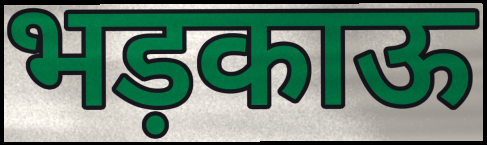
भड़काऊ